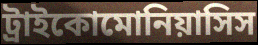
ট্রাইকোমোনিয়াসিস